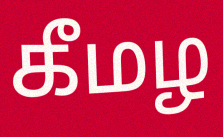
கீமழ